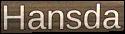
Hansda